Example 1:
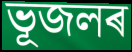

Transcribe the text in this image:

ভূজলৰ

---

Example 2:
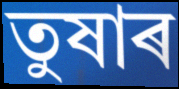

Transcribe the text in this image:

তুষাৰ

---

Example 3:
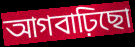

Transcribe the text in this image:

আগবাঢ়িছো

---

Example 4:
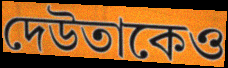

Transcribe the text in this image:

দেউতাকেও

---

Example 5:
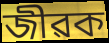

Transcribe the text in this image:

জীৱক